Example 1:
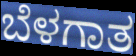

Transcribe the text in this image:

ಬೆಳಗಾತ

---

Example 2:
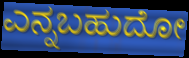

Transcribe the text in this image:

ಎನ್ನಬಹುದೋ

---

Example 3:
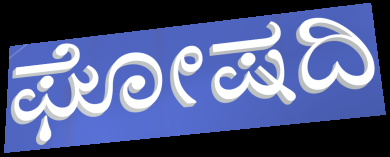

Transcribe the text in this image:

ಘೋಷದಿ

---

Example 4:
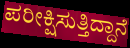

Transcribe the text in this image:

ಪರೀಕ್ಷಿಸುತ್ತಿದ್ದಾನೆ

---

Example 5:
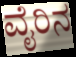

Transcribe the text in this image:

ವೈರಿನ